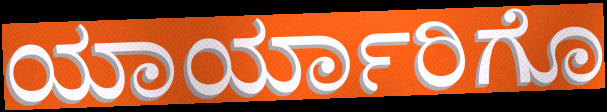
ಯಾರ್ಯಾರಿಗೊ